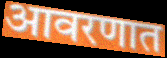
आवरणात